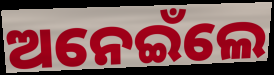
ଅନେଇଁଲେ